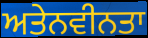
ਅਤੇਨਵੀਨਤਾ